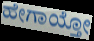
ಹೇಗಾಯ್ತೋ